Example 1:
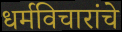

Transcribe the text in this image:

धर्मविचारांचे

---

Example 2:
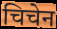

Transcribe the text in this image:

चिचेन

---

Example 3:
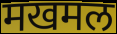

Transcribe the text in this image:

मखमल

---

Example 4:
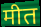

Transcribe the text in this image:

मीत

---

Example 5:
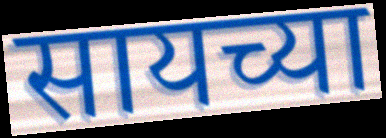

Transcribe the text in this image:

सायच्या